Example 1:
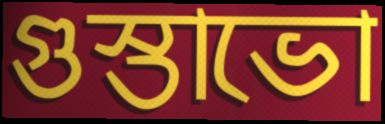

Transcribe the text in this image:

গুস্তাভো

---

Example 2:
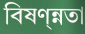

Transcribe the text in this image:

বিষণ্ন্নতা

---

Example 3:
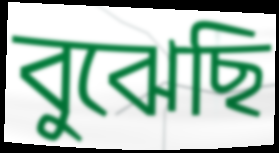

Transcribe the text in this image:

বুঝেছি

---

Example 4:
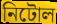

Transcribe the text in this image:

নিটোল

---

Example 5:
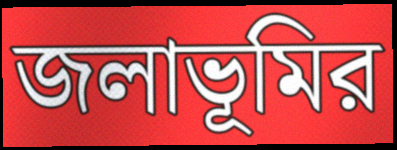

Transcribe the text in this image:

জলাভূমির